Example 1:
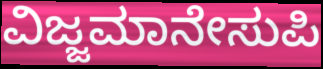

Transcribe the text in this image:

ವಿಜ್ಜಮಾನೇಸುಪಿ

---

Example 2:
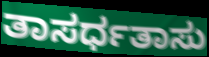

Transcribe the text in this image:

ತಾಸರ್ಧತಾಸು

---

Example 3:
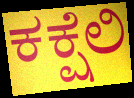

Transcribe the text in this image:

ಕಕ್ಷೆಲಿ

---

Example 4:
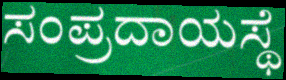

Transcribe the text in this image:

ಸಂಪ್ರದಾಯಸ್ಥೆ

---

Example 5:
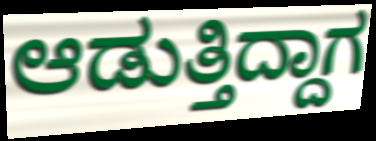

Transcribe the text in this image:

ಆಡುತ್ತಿದ್ದಾಗ